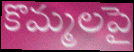
కొమ్మలపై